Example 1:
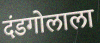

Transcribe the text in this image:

दंडगोलाला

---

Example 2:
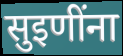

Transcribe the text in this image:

सुइणींना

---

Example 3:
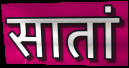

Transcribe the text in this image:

सातां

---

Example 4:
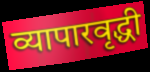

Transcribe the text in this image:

व्यापारवृद्धी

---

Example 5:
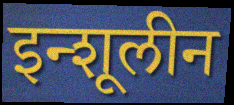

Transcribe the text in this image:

इन्शूलीन